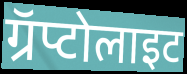
ग्रॅप्टोलाइट